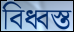
বিধ্বস্ত